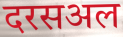
दरसअल